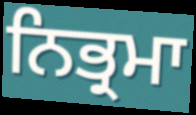
ਨਿਭ੍ਰਮਾ